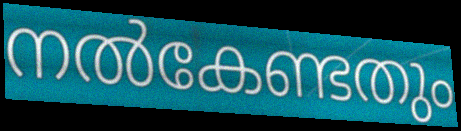
നൽകേണ്ടതും